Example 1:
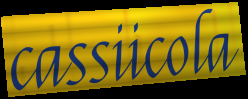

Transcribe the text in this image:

cassiicola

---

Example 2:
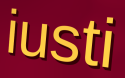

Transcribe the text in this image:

iusti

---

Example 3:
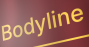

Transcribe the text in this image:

Bodyline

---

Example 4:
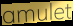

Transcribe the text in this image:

amulet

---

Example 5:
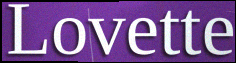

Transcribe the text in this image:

Lovette